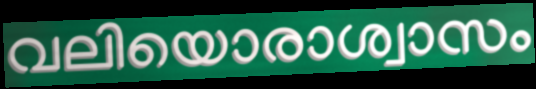
വലിയൊരാശ്വാസം